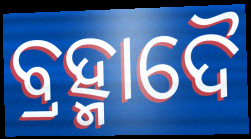
ବ୍ରହ୍ମାଦୈ